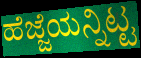
ಹೆಜ್ಜೆಯನ್ನಿಟ್ಟ